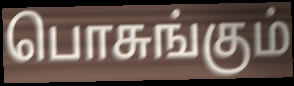
பொசுங்கும்